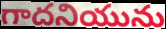
గాదనియును